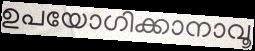
ഉപയോഗിക്കാനാവൂ